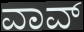
ವಾವ್